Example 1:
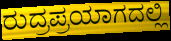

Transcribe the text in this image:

ರುದ್ರಪ್ರಯಾಗದಲ್ಲಿ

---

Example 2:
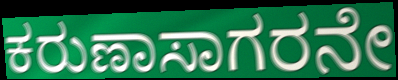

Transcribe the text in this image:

ಕರುಣಾಸಾಗರನೇ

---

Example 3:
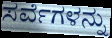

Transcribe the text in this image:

ಸರ್ವೆಗಳನ್ನು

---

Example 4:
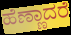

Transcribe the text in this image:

ಹೆಣ್ಣಾದರೆ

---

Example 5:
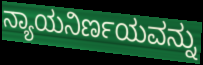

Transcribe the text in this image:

ನ್ಯಾಯನಿರ್ಣಯವನ್ನು